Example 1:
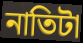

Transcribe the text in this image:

নাতিটা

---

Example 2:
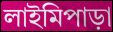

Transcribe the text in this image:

লাইমিপাড়া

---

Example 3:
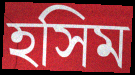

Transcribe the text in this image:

হসিম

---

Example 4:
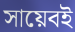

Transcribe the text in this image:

সায়েবই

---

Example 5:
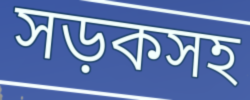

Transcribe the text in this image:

সড়কসহ